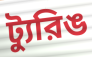
ট্যুরিঙ